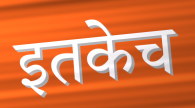
इतकेच